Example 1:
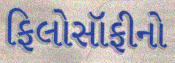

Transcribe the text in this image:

ફિલોસૉફીનો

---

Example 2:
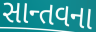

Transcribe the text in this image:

સાન્તવના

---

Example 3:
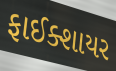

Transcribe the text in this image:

ફાઈક્શાયર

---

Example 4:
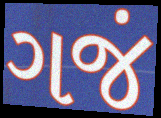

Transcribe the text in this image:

ગજં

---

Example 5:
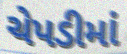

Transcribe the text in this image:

ચેપડીમાં